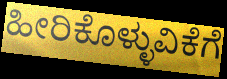
ಹೀರಿಕೊಳ್ಳುವಿಕೆಗೆ